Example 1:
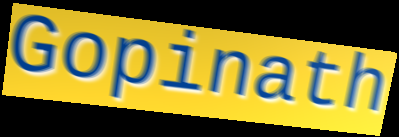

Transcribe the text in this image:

Gopinath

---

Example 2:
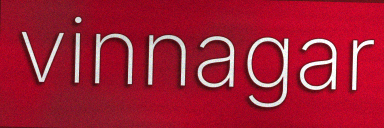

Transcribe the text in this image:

vinnagar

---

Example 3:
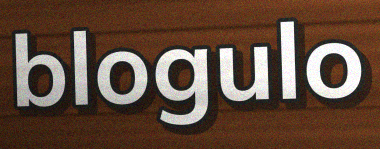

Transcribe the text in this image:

blogulo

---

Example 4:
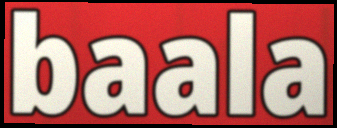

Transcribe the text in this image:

baala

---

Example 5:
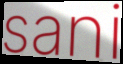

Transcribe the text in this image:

sani